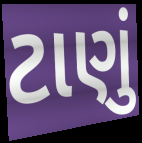
ટાણું